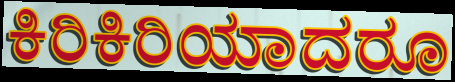
ಕಿರಿಕಿರಿಯಾದರೂ